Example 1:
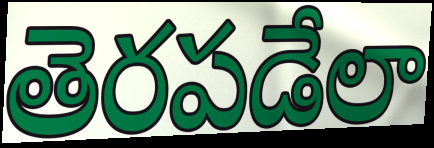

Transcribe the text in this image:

తెరపడేలా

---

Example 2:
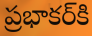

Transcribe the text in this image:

ప్రభాకర్‌కి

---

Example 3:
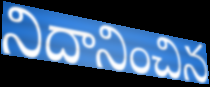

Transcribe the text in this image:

నిదానించిన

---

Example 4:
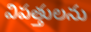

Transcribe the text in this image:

విపత్తులను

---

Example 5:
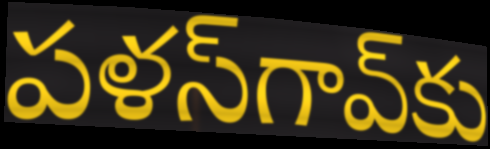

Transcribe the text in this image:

పళస్‌గావ్‌కు